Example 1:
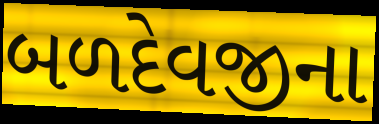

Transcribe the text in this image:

બળદેવજીના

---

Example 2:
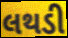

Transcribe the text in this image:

લથડી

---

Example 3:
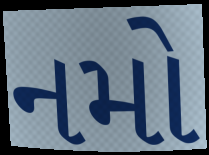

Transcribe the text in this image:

નમો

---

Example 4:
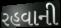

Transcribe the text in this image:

રહવાની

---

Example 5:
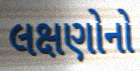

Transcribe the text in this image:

લક્ષણોનો